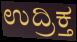
ಉದ್ರಿಕ್ತ